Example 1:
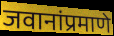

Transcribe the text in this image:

जवानांप्रमाणे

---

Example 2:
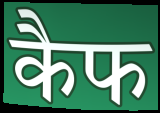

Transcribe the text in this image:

कैफ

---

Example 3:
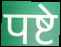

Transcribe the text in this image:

पष्टे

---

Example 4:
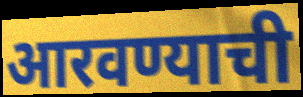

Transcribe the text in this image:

आरवण्याची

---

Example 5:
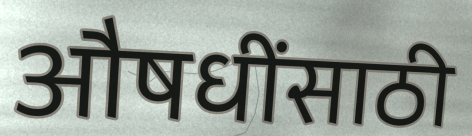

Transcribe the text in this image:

औषधींसाठी